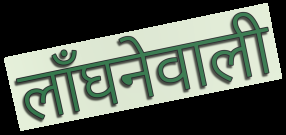
लाँघनेवाली